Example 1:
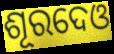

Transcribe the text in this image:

ଶୂରଦେଓ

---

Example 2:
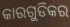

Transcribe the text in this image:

କାରଗୁଡିକର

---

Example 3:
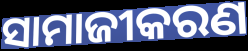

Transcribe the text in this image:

ସାମାଜୀକରଣ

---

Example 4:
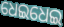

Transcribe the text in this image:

ଧେଇଧେଇ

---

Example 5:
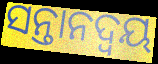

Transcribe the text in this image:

ସନ୍ତାନଦ୍ୱୟ